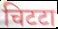
चिटटा